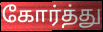
கோர்த்து